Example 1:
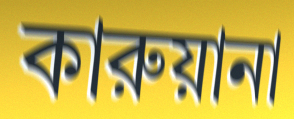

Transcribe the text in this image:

কারুয়ানা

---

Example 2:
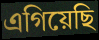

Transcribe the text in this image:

এগিয়েছি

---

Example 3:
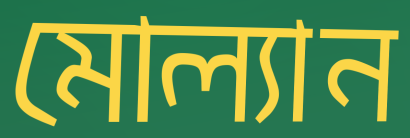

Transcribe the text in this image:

মোল্যান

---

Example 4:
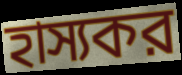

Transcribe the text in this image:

হাস্যকর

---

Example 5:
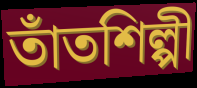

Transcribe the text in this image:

তাঁতশিল্পী